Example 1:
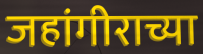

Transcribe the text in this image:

जहांगीराच्या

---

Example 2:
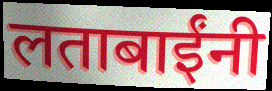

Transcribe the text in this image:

लताबाईंनी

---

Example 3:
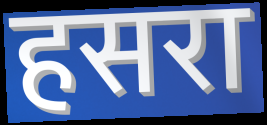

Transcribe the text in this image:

हसरा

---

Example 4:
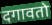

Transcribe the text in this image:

दगावतो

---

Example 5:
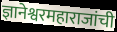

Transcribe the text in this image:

ज्ञानेश्वरमहाराजांची